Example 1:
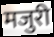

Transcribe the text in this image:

मजुरी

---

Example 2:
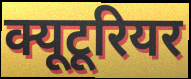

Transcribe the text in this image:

क्यूटूरियर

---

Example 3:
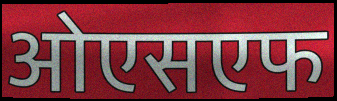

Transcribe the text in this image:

ओएसएफ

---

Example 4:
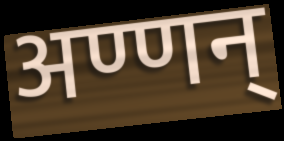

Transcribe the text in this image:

अण्णन्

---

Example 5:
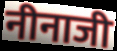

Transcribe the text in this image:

नीनाजी